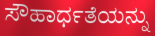
ಸೌಹಾರ್ಧತೆಯನ್ನು